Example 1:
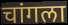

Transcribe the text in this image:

चांगला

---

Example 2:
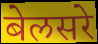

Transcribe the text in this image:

बेलसरे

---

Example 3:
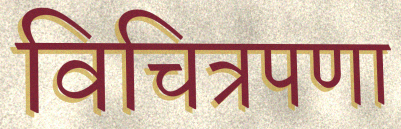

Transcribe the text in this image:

विचित्रपणा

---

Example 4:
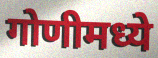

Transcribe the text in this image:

गोणीमध्ये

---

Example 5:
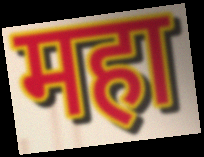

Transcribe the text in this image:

महा